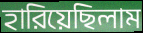
হারিয়েছিলাম